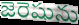
జెరెషును